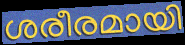
ശരീരമായി